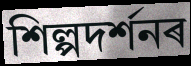
শিল্পদৰ্শনৰ